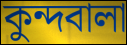
কুন্দবালা